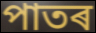
পাতৰ